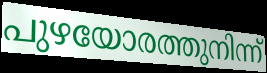
പുഴയോരത്തുനിന്ന്